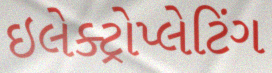
ઇલેક્ટ્રોપ્લેટિંગ